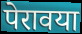
पेरावया